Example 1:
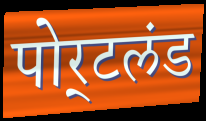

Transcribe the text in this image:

पोर्टलंड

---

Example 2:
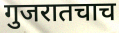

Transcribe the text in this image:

गुजरातचाच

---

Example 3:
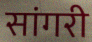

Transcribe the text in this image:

सांगरी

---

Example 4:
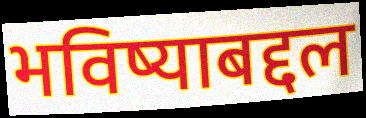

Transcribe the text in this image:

भविष्याबद्दल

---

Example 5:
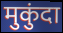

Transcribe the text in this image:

मुकुंदा